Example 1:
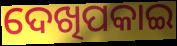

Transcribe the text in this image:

ଦେଖିପକାଇ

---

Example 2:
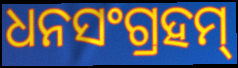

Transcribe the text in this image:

ଧନସଂଗ୍ରହମ୍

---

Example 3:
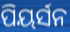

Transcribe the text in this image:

ପିୟର୍ସନ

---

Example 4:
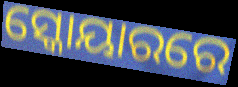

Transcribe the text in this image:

ସ୍କୋୟାରରେ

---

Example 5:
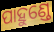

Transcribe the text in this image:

ପାହୁଣ୍ଡେ